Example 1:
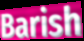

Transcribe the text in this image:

Barish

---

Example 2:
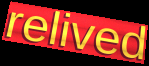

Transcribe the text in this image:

relived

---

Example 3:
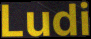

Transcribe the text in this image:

Ludi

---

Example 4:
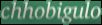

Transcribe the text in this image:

chhobigulo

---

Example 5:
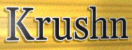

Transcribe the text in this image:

Krushn